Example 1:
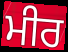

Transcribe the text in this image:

ਮੀਰ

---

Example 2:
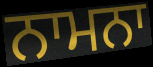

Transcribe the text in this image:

ਨਾਮਨਾ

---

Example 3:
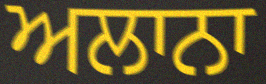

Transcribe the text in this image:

ਅਲਾਨਾ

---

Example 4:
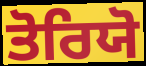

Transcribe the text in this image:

ਤੋਰਿਯੋ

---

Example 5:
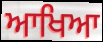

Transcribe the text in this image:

ਆਖਿਆ